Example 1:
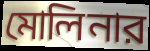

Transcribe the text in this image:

মোলিনার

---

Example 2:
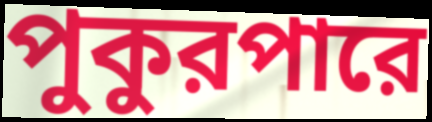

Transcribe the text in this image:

পুকুরপারে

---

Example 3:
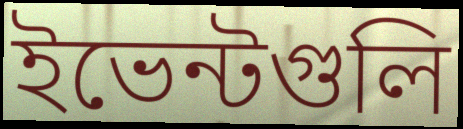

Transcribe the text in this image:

ইভেন্টগুলি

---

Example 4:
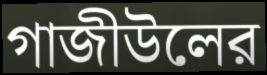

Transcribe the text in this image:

গাজীউলের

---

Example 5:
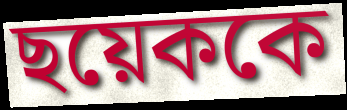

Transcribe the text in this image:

ছয়েককে